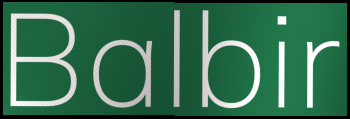
Balbir